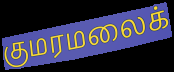
குமரமலைக்